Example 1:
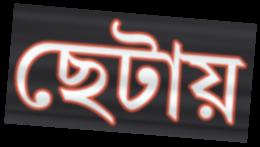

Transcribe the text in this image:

ছেটায়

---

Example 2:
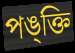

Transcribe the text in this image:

পঙ্‌ক্তি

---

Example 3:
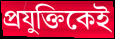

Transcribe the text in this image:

প্রযুক্তিকেই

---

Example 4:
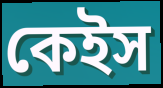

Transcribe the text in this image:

কেইস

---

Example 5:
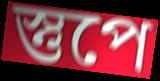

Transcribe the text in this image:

স্তুপে